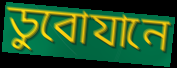
ডুবোযানে